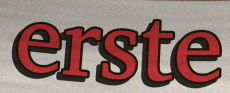
erste